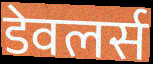
डेवलर्स